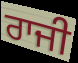
ਰਾਜੀ